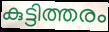
കുട്ടിത്തരം